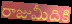
రాజుమీదికి